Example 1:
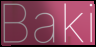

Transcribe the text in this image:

Baki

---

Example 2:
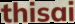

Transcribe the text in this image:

thisai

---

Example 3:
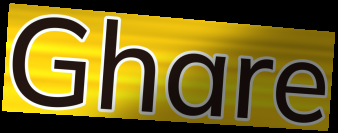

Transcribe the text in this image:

Ghare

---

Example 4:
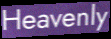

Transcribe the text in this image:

Heavenly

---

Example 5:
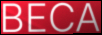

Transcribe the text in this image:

BECA